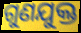
ଗୁଣଯୁକ୍ତ